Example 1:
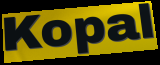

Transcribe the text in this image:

Kopal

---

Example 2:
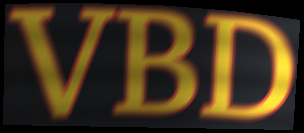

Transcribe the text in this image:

VBD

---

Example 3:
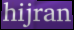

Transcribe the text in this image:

hijran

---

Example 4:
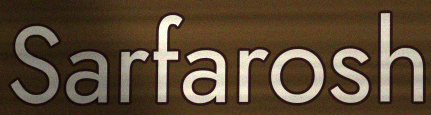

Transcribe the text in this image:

Sarfarosh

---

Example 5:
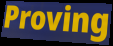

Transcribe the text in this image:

Proving